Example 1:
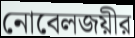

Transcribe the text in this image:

নোবেলজয়ীর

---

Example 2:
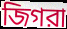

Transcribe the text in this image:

জিগরা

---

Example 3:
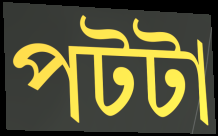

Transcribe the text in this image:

পটটা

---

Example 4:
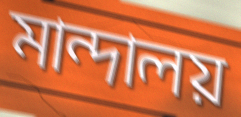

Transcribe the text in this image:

মান্দালয়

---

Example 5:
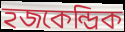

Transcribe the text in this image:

হজকেন্দ্রিক